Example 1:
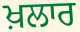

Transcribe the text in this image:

ਖ਼ਲਾਰ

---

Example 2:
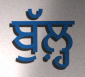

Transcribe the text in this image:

ਬੁੱਲ਼੍ਹ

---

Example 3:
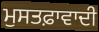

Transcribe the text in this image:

ਮੁਸਤਫ਼ਾਵਾਦੀ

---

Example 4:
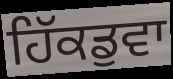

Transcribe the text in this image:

ਹਿੱਕਡੁਵਾ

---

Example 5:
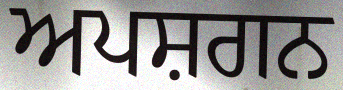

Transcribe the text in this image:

ਅਪਸ਼ਗਨ